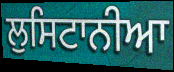
ਲੁਸਿਟਾਨੀਆ